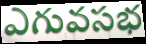
ఎగువసభ